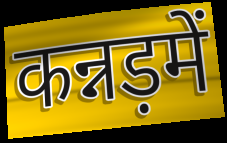
कन्नड़में